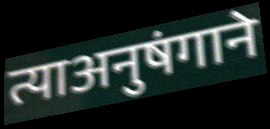
त्याअनुषंगाने